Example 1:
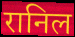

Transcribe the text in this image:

रानिल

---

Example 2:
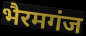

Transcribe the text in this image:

भैरमगंज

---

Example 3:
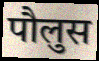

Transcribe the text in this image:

पौलुस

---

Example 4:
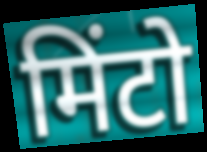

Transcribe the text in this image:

मिंटो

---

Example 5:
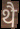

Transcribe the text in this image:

थै